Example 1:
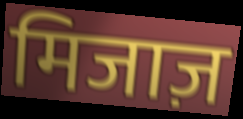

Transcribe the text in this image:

मिजाज़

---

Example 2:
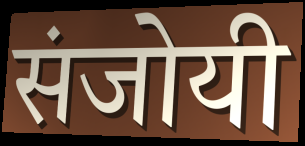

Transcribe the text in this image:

संजोयी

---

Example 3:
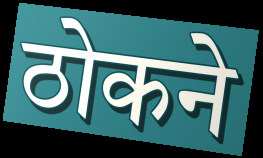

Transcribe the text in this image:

ठोकने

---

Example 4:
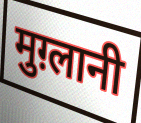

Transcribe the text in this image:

मुग़्लानी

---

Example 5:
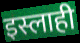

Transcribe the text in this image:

इस्लाही